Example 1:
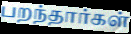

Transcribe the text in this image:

பறந்தார்கள்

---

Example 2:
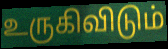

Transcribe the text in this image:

உருகிவிடும்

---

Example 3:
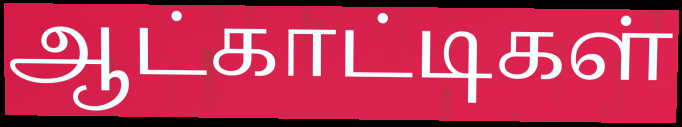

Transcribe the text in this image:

ஆட்காட்டிகள்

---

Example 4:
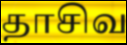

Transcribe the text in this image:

தாசிவ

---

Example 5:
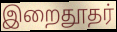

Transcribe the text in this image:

இறைதூதர்